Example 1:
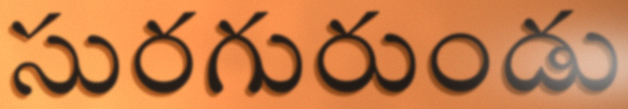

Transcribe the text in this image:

సురగురుండు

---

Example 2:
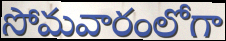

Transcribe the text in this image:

సోమవారంలోగా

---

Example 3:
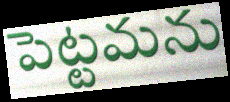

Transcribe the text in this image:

పెట్టమను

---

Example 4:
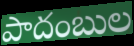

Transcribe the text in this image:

పాదంబుల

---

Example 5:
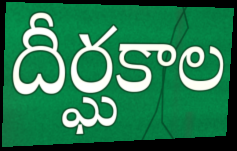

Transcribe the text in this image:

దీర్ఘకాల